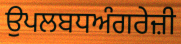
ਉਪਲਬਧਅੰਗਰੇਜ਼ੀ